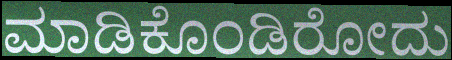
ಮಾಡಿಕೊಂಡಿರೋದು